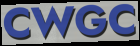
CWGC